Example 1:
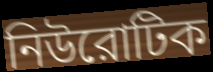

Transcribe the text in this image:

নিউরোটিক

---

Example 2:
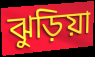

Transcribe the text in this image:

ঝুড়িয়া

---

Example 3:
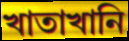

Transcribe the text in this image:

খাতাখানি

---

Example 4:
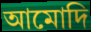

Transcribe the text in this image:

আমোদি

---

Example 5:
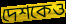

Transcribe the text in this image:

দেশকেও